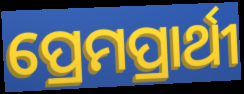
ପ୍ରେମପ୍ରାର୍ଥୀ